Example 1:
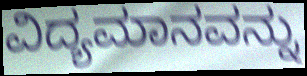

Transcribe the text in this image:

ವಿದ್ಯಮಾನವನ್ನು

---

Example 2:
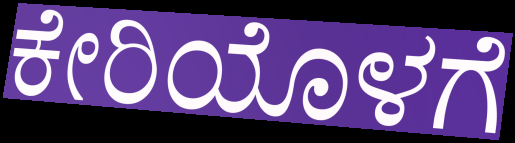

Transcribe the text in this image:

ಕೇರಿಯೊಳಗೆ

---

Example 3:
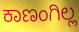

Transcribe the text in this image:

ಕಾಣಂಗಿಲ್ಲ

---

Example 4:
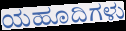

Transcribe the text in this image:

ಯಹೂದಿಗಳು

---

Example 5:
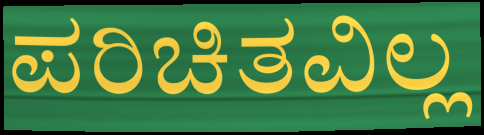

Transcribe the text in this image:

ಪರಿಚಿತವಿಲ್ಲ